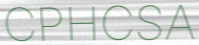
CPHCSA